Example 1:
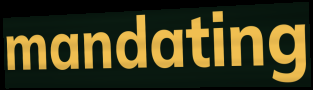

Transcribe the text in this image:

mandating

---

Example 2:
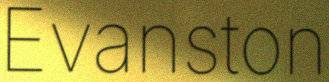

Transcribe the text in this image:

Evanston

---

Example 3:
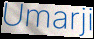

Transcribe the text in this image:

Umarji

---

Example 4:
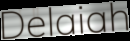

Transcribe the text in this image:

Delaiah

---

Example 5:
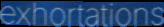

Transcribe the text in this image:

exhortations